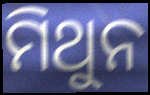
ମିଥୁନ